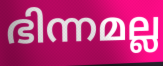
ഭിന്നമല്ല